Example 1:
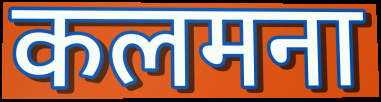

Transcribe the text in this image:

कलमना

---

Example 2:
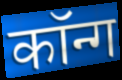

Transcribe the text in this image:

कॉन्ग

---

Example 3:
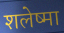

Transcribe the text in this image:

शलेष्मा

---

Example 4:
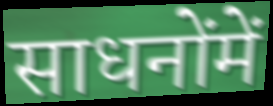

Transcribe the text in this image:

साधनोंमें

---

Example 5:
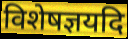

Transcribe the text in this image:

विशेषज्ञयदि